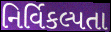
નિર્વિકલ્પતા